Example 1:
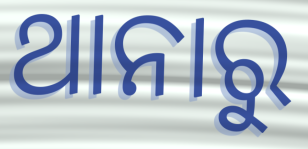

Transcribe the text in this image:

ଥାନାରୁ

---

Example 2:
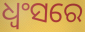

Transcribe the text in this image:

ଧ୍ୱଂସରେ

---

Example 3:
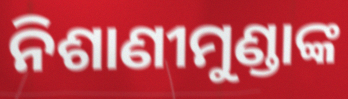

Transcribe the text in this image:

ନିଶାଣୀମୁଣ୍ଡାଙ୍କ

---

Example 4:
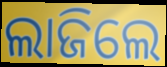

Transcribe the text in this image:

ଲାଜିଲେ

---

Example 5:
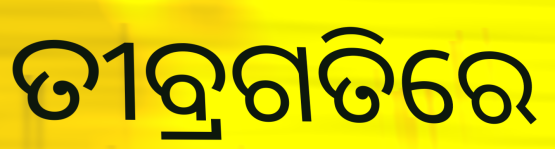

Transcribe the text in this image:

ତୀବ୍ରଗତିରେ